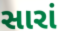
સારાં